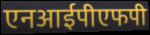
एनआईपीएफपी